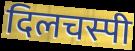
दिलचस्पी